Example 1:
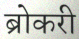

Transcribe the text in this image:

ब्रोकरी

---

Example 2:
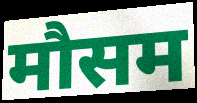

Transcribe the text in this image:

मौसम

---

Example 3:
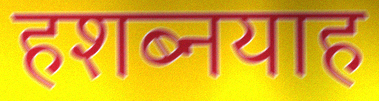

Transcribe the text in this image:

हशब्नयाह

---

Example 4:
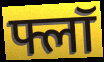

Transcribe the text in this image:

फ्लॉ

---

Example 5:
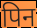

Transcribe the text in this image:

पिन